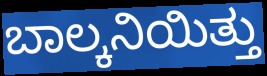
ಬಾಲ್ಕನಿಯಿತ್ತು